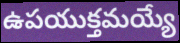
ఉపయుక్తమయ్యే